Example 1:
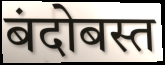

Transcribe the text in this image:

बंदोबस्त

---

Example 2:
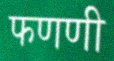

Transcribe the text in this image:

फणणी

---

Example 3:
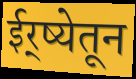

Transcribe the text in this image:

ईर्ष्येतून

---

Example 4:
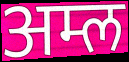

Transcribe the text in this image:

अम्ल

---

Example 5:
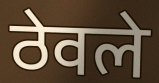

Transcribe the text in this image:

ठेवले